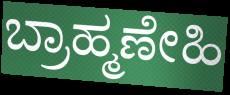
ಬ್ರಾಹ್ಮಣೇಹಿ